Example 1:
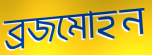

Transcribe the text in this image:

ব্রজমোহন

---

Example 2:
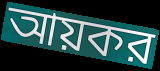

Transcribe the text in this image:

আয়কর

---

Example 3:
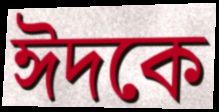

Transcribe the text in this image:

ঈদকে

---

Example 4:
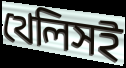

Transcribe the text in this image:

থেলিসই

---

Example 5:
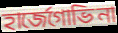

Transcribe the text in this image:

হার্জেগোভিনা